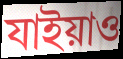
যাইয়াও